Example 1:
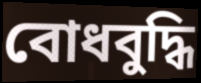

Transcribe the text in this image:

বোধবুদ্ধি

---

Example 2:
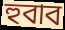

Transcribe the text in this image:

হুবাব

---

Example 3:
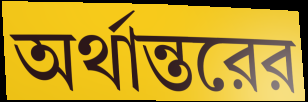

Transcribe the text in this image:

অর্থান্তরের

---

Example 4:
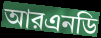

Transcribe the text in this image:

আরএনডি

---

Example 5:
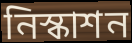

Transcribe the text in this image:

নিস্কাশন